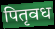
पितृवध